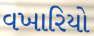
વખારિયો